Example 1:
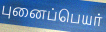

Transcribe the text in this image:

புனைப்பெயர்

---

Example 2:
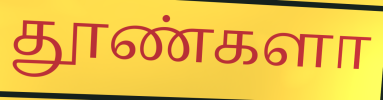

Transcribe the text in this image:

தூண்களா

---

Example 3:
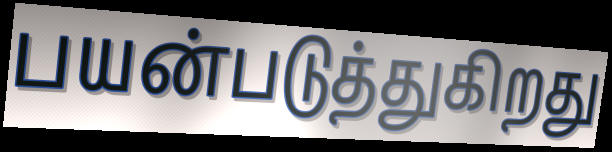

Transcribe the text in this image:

பயன்படுத்துகிறது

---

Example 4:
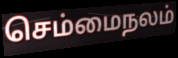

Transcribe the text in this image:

செம்மைநலம்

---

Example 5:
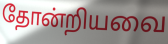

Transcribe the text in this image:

தோன்றியவை